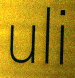
uli